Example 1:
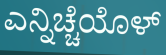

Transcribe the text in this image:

ಎನ್ನಿಚ್ಚೆಯೊಳ್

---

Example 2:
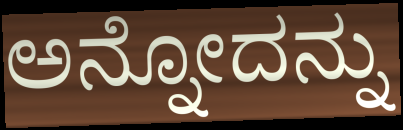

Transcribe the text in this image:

ಅನ್ನೋದನ್ನು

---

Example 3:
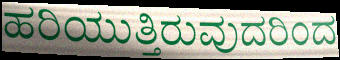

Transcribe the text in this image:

ಹರಿಯುತ್ತಿರುವುದರಿಂದ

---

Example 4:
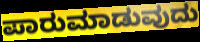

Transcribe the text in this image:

ಪಾರುಮಾಡುವುದು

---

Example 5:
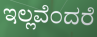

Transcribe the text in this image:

ಇಲ್ಲವೆಂದರೆ